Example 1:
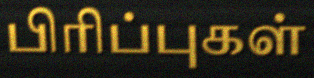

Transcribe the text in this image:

பிரிப்புகள்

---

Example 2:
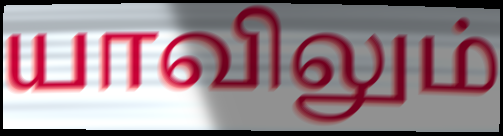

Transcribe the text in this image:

யாவிலும்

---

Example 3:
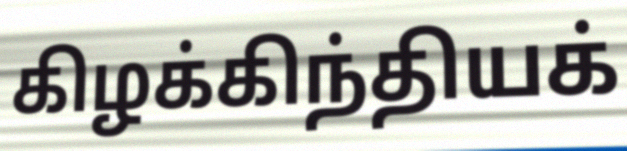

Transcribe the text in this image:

கிழக்கிந்தியக்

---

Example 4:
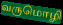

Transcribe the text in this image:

வருமொழி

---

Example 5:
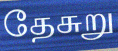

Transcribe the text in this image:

தேசுறு